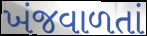
ખંજવાળતાં